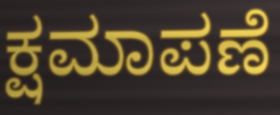
ಕ್ಷಮಾಪಣೆ